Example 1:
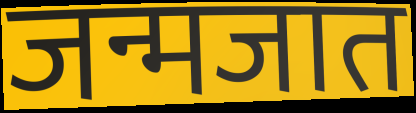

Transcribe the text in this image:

जन्मजात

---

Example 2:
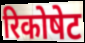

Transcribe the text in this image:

रिकोषेट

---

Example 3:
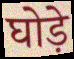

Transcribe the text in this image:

घोड़े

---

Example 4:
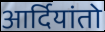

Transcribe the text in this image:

आर्दियांतो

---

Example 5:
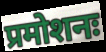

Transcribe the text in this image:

प्रमोशनः